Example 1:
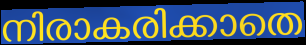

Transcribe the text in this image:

നിരാകരിക്കാതെ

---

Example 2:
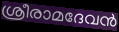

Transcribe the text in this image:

ശ്രീരാമദേവൻ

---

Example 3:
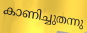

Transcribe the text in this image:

കാണിച്ചുതന്നു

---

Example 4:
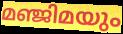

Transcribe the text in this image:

മഞ്ജിമയും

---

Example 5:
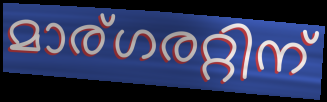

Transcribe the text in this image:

മാര്ഗരറ്റിന്